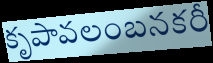
కృపావలంబనకరీ